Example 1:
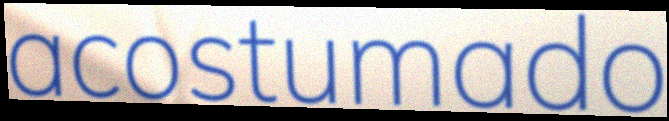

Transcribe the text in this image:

acostumado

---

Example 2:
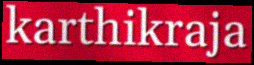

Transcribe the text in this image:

karthikraja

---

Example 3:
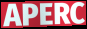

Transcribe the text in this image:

APERC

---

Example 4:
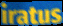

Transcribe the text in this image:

iratus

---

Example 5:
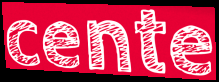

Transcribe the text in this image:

cente